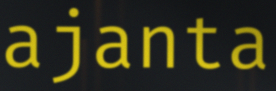
ajanta